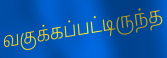
வகுக்கப்பட்டிருந்த